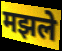
मझले